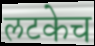
लटकेच